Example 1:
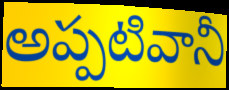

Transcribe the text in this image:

అప్పటివానీ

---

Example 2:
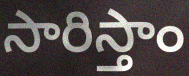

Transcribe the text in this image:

సారిస్తాం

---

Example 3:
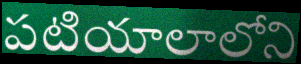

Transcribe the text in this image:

పటియాలాలోని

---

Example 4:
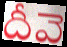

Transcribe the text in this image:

దీవె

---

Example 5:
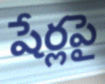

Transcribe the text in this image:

షేర్లపై